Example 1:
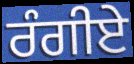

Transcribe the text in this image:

ਰੰਗੀਏ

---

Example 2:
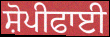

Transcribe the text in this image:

ਸ਼ੋਪੀਫਾਈ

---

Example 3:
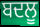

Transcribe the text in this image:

ਬਦਲੂ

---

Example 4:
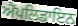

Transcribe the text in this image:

ਐੰਪਲਿਡਾਇਨ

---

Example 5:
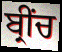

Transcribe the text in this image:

ਬ੍ਰੀਂਚ